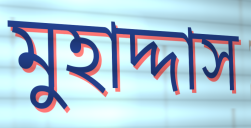
মুহাদ্দাস